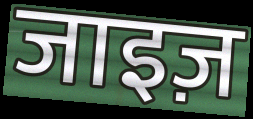
जाइज़